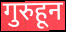
गुरुहून